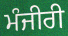
ਮੰਜੀਰੀ